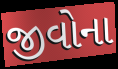
જીવોના